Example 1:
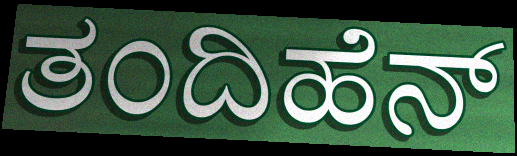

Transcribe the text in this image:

ತಂದಿಹೆನ್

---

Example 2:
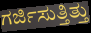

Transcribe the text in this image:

ಗರ್ಜಿಸುತ್ತಿತ್ತು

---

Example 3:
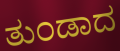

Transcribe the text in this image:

ತುಂಡಾದ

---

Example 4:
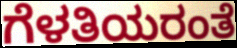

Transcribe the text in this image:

ಗೆಳತಿಯರಂತೆ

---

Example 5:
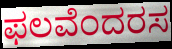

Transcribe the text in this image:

ಫಲವೆಂದರಸ